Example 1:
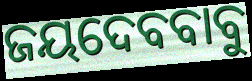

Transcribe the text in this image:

ଜୟଦେବବାବୁ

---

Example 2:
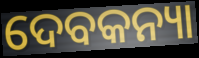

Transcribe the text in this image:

ଦେବକନ୍ୟା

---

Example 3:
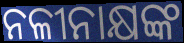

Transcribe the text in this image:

ନଳୀନାକ୍ଷଙ୍କ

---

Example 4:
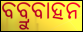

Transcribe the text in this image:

ବବ୍ରୁବାହନ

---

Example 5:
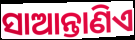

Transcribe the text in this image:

ସାଆନ୍ତାଣିଏ